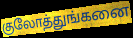
குலோத்துங்கனை